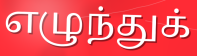
எழுந்துக்